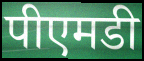
पीएमडी